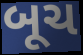
બૂચ